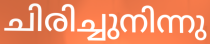
ചിരിച്ചുനിന്നു